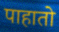
पाहातो